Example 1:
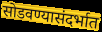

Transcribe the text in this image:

सोडवण्यासंदर्भात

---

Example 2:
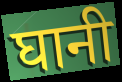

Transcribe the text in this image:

घानी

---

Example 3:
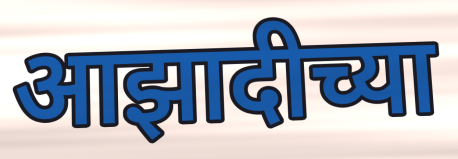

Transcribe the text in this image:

आझादीच्या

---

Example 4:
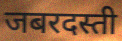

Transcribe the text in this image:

जबरदस्ती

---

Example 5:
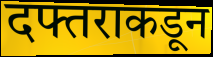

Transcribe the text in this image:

दफ्तराकडून